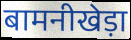
बामनीखेड़ा